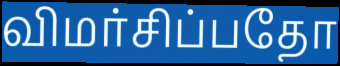
விமர்சிப்பதோ